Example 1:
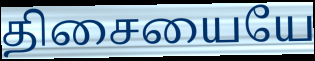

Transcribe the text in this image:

திசையையே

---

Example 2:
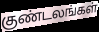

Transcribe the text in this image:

குண்டலங்கள்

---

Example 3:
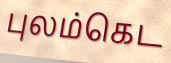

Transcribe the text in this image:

புலம்கெட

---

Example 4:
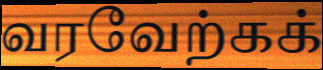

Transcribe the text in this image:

வரவேற்கக்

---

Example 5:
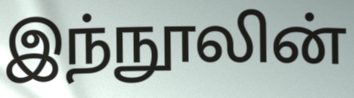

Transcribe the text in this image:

இந்நூலின்